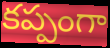
కప్పంగా